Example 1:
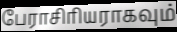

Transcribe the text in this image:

பேராசிரியராகவும்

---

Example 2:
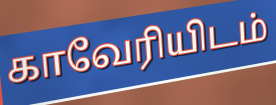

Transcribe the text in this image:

காவேரியிடம்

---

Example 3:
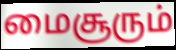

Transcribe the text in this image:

மைசூரும்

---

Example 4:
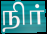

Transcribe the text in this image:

நிர்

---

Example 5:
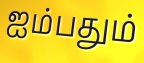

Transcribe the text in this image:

ஐம்பதும்